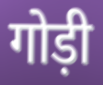
गोड़ी